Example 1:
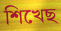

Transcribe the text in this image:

শিখেছ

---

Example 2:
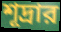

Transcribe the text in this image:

শূদ্রার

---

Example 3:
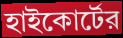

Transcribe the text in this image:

হাইকোর্টের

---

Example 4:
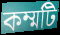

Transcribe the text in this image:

কম্মটি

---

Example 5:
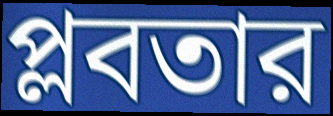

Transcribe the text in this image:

প্লবতার